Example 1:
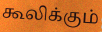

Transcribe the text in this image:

கூலிக்கும்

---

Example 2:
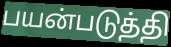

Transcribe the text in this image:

பயன்படுத்தி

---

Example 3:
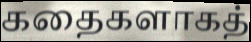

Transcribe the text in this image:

கதைகளாகத்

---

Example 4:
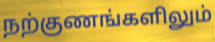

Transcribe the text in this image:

நற்குணங்களிலும்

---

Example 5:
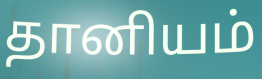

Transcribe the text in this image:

தானியம்